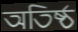
অতিষ্ঠ